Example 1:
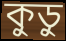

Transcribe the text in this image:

কুডু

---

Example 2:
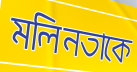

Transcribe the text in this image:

মলিনতাকে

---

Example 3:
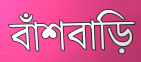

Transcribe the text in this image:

বাঁশবাড়ি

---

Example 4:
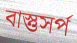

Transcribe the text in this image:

বাস্তুসর্প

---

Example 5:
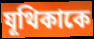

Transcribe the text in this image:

যূথিকাকে